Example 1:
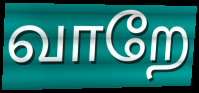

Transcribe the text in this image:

வாறே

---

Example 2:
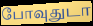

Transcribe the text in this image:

போவுதுடா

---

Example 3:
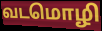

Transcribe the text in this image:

வடமொழி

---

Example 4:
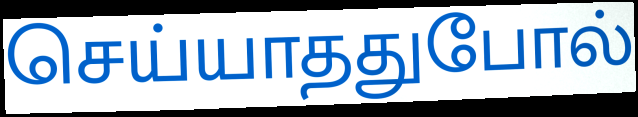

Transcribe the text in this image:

செய்யாததுபோல்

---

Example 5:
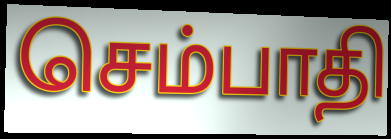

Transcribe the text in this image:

செம்பாதி